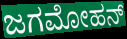
ಜಗಮೋಹನ್